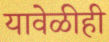
यावेळीही